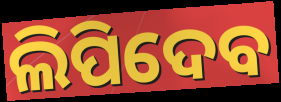
ଲିପିଦେବ